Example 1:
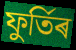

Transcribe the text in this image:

ফুৰ্তিৰ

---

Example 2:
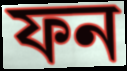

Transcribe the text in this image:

ফন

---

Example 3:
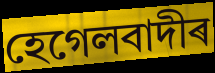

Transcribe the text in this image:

হেগেলবাদীৰ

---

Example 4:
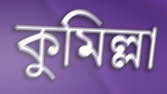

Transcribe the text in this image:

কুমিল্লা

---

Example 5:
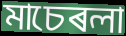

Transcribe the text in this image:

মাচেৰলা